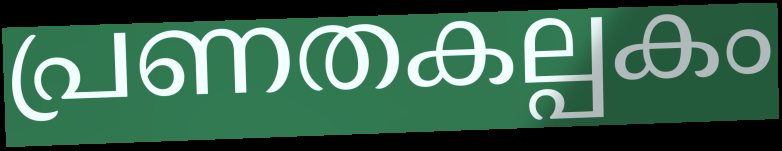
പ്രണതകല്പകം